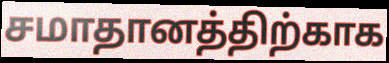
சமாதானத்திற்காக